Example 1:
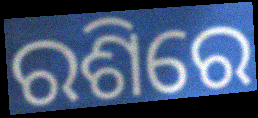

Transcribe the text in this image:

ରଶିରେ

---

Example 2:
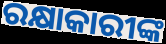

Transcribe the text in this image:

ରକ୍ଷାକାରୀଙ୍କ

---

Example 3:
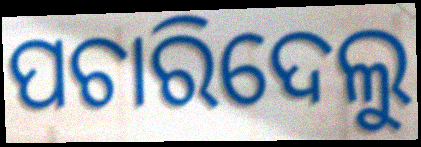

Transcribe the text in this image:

ପଚାରିଦେଲୁ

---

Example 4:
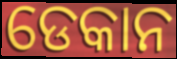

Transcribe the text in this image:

ଡେକାନ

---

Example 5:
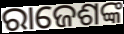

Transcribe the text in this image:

ରାଜେଶଙ୍କ